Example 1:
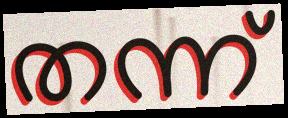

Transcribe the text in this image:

തന്ന്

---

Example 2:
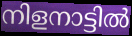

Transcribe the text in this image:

നിളനാട്ടിൽ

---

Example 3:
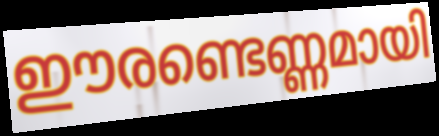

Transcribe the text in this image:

ഈരണ്ടെണ്ണമായി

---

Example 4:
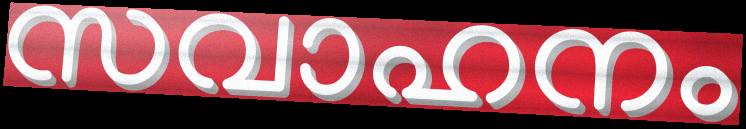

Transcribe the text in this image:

സവാഹനം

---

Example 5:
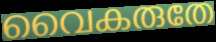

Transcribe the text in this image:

വൈകരുതേ